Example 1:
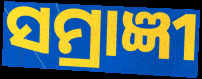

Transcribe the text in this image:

ସମ୍ରାଜ୍ଞୀ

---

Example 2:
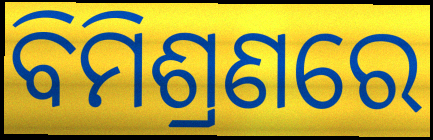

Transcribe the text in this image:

ବିମିଶ୍ରଣରେ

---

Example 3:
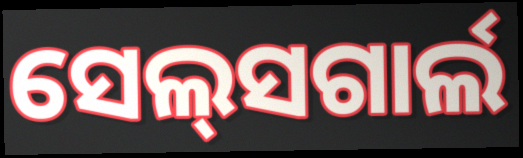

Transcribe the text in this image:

ସେଲ୍‍ସଗାର୍ଲ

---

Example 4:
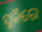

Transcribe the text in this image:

ସୁର୍କିରେ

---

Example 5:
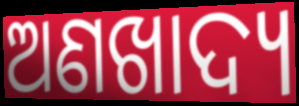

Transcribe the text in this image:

ଅଣଖାଦ୍ୟ